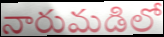
నారుమడిలో